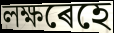
লক্ষৰেহে